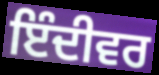
ਇੰਦੀਵਰ